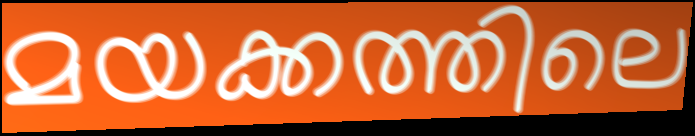
മയക്കത്തിലെ